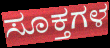
ಸೂಕ್ತಗಳ